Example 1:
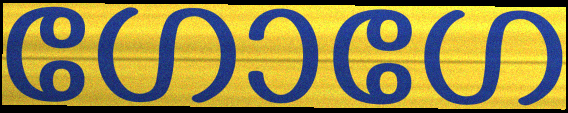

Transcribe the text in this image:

ഗോഗേ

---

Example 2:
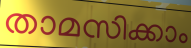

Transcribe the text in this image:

താമസിക്കാം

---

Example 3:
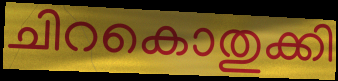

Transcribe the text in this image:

ചിറകൊതുക്കി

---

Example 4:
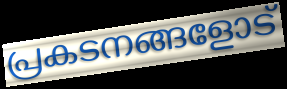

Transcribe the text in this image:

പ്രകടനങ്ങളോട്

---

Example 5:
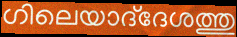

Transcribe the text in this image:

ഗിലെയാദ്‌ദേശത്തു